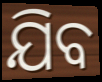
ଯିବ